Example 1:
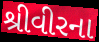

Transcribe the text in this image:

શ્રીવીરના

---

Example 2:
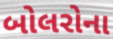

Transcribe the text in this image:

બોલરોના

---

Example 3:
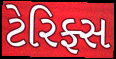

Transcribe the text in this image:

ટેરિફ્સ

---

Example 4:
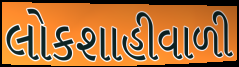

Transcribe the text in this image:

લોકશાહીવાળી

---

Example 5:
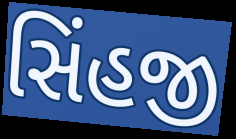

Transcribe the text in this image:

સિંહજી